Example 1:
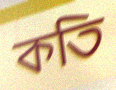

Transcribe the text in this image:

কতি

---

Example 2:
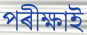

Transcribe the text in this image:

পৰীক্ষাই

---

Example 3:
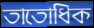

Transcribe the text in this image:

তাতোধিক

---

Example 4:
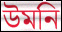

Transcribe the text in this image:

উমনি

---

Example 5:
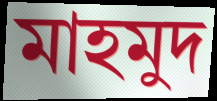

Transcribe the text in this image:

মাহমুদ